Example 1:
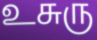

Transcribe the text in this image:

உசுரு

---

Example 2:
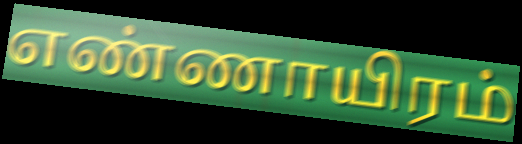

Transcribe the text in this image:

எண்ணாயிரம்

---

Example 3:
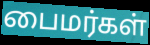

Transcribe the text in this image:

பைமர்கள்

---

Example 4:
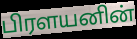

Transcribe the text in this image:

பிரளயனின்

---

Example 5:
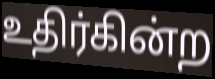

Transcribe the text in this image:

உதிர்கின்ற